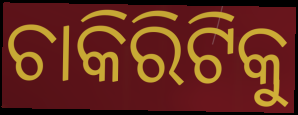
ଚାକିରିଟିକୁ